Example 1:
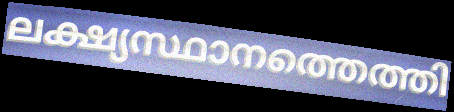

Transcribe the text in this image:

ലക്ഷ്യസ്ഥാനത്തെത്തി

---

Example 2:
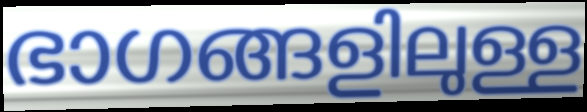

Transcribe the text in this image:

ഭാഗങ്ങളിലുള്ള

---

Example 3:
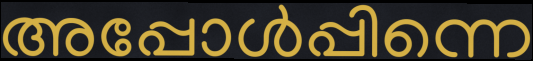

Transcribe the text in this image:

അപ്പോൾപ്പിന്നെ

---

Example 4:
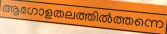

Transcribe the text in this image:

ആഗോളതലത്തിൽത്തന്നെ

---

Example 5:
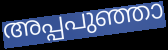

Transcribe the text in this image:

അപ്പപുഞ്ഞാ